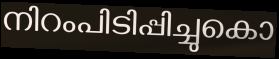
നിറംപിടിപ്പിച്ചുകൊ